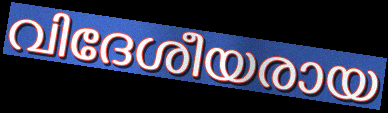
വിദേശീയരായ